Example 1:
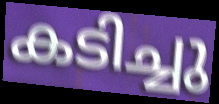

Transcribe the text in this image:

കടിച്ചു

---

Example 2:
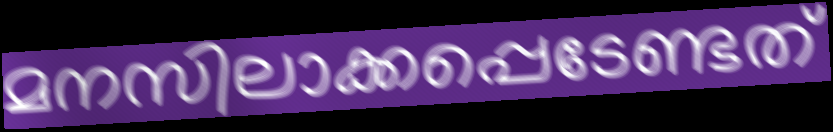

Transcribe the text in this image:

മനസിലാക്കപ്പെടേണ്ടത്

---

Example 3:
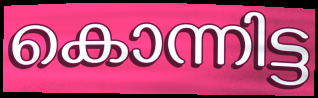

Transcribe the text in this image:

കൊന്നിട്ട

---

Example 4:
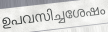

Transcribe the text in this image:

ഉപവസിച്ചശേഷം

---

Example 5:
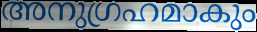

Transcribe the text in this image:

അനുഗ്രഹമാകും